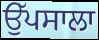
ਉੱਪਸਾਲਾ